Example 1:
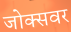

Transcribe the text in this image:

जोक्सवर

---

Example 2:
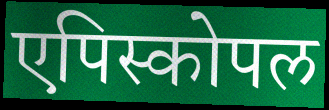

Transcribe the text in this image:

एपिस्कोपल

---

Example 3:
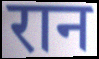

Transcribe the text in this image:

रान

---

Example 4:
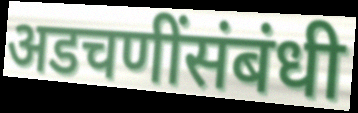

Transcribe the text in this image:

अडचणींसंबंधी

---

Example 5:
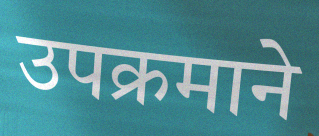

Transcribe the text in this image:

उपक्रमाने